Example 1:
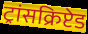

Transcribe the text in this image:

ट्रांसक्रिप्टेड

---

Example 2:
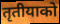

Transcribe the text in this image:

तृतीयाको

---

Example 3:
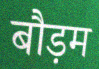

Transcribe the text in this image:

बौड़म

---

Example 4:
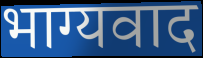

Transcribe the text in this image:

भाग्यवाद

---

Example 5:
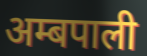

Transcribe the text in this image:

अम्बपाली